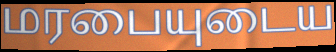
மரபையுடைய